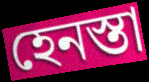
হেনস্তা